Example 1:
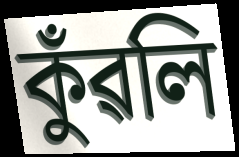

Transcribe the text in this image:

কুঁৱলি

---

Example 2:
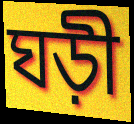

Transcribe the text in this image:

ঘড়ী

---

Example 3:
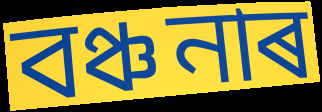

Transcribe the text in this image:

বঞ্চনাৰ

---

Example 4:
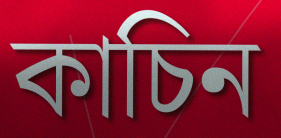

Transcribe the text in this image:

কাচিন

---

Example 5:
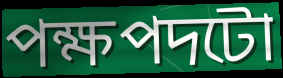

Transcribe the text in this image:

পক্ষপদটো